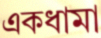
একধামা